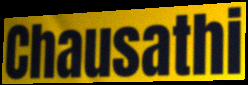
Chausathi